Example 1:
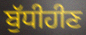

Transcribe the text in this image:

ਬੁੱਧੀਹੀਣ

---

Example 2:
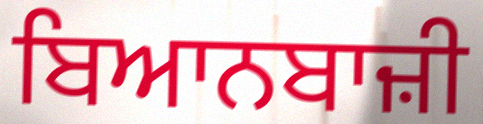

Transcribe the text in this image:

ਬਿਆਨਬਾਜ਼ੀ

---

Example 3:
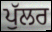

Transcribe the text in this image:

ਪੁੱਲਰ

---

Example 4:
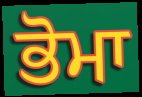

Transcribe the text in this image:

ਭੋਮਾ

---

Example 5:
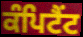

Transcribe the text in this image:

ਕੰਪਿਟੈਂਟ